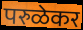
परुळेकर